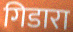
गिडारा